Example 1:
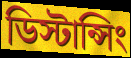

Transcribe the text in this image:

ডিস্টান্সিং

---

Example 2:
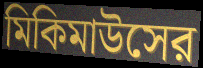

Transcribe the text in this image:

মিকিমাউসের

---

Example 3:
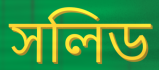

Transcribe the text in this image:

সলিড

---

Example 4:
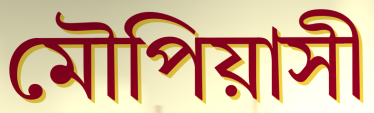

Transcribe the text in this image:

মৌপিয়াসী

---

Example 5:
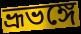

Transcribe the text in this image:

ভ্রূভঙ্গে